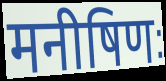
मनीषिणः